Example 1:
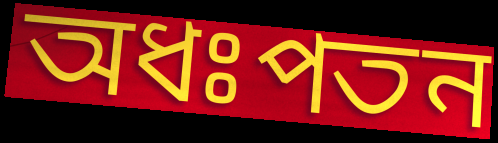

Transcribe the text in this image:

অধঃপতন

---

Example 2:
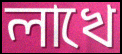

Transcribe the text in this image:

লাখে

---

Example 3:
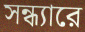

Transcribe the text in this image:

সন্ধ্যারে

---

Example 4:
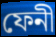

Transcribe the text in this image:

ফেনী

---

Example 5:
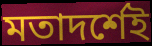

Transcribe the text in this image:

মতাদর্শেই